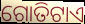
ଗୋତିଟାଏ